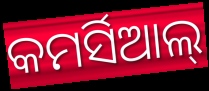
କମର୍ସିଆଲ୍